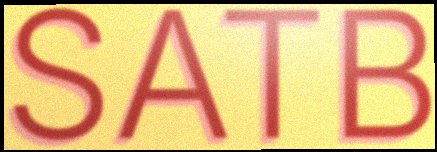
SATB